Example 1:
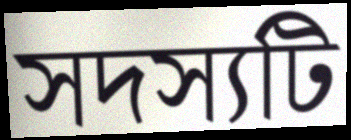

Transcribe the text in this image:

সদস্যটি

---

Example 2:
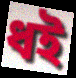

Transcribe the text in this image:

ধই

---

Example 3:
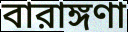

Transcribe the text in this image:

বারাঙ্গণা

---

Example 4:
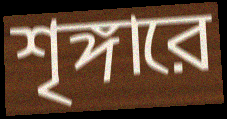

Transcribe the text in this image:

শৃঙ্গারে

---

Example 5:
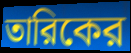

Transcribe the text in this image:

তারিকের